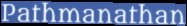
Pathmanathan